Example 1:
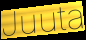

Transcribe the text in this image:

Juuta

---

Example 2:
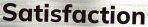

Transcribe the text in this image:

Satisfaction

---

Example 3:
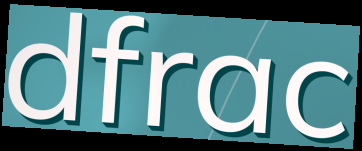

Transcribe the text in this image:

dfrac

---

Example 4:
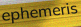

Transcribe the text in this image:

ephemeris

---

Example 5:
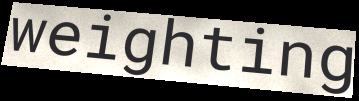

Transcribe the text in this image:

weighting